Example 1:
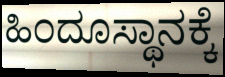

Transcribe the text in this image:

ಹಿಂದೂಸ್ಥಾನಕ್ಕೆ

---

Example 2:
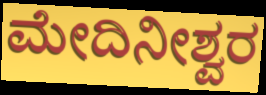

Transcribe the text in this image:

ಮೇದಿನೀಶ್ವರ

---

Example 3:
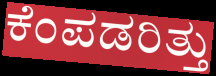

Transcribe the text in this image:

ಕೆಂಪಡರಿತ್ತು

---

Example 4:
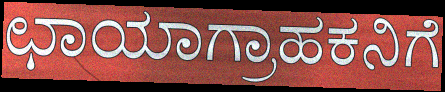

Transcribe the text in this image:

ಛಾಯಾಗ್ರಾಹಕನಿಗೆ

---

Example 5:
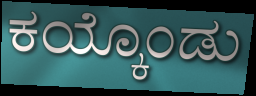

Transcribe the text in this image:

ಕಯ್ಕೊಂಡು